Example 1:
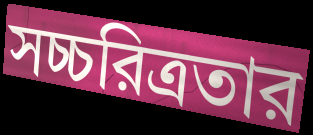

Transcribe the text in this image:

সচ্চরিত্রতার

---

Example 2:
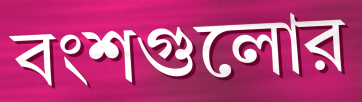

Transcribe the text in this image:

বংশগুলোর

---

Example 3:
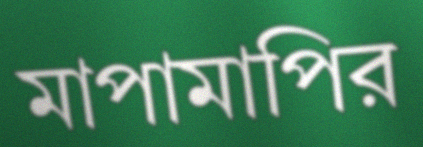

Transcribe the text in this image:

মাপামাপির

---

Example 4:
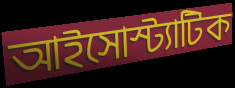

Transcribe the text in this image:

আইসোস্ট্যাটিক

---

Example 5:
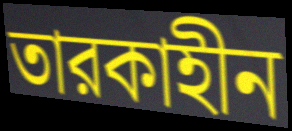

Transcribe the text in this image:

তারকাহীন